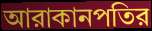
আরাকানপতির